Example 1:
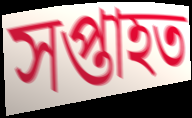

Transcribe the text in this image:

সপ্তাহত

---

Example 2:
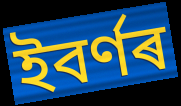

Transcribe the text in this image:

ইবৰ্ণৰ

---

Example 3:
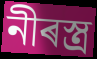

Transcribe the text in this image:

নীৰস্ত্ৰ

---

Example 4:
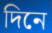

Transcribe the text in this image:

দিনে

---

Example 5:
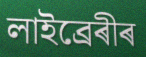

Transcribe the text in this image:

লাইব্ৰেৰীৰ